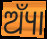
ଅ୍ୟାଁ